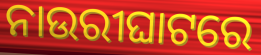
ନାଉରୀଘାଟରେ